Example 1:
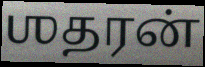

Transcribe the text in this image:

ஶதரன்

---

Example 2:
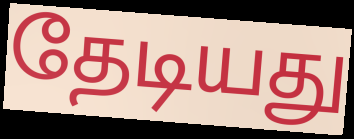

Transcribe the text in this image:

தேடியது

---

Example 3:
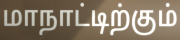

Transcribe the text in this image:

மாநாட்டிற்கும்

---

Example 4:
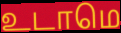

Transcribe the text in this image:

உடாமெ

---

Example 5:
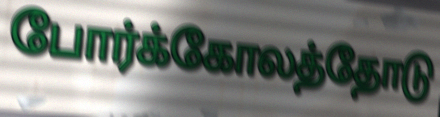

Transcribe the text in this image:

போர்க்கோலத்தோடு